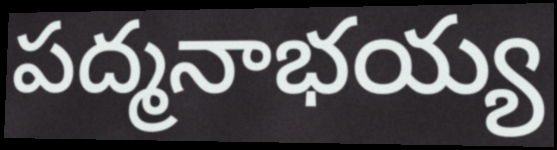
పద్మనాభయ్య